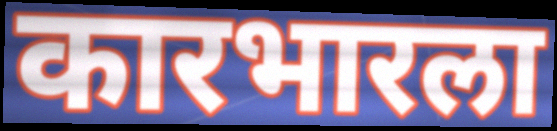
कारभारला